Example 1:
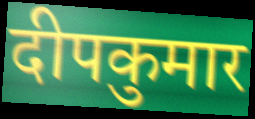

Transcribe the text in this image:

दीपकुमार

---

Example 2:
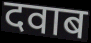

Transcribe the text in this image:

दवाब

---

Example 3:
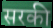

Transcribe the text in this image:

सरकी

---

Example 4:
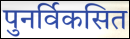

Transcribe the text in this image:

पुनर्विकसित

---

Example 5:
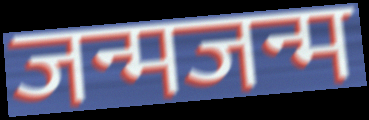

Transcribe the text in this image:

जन्मजन्म